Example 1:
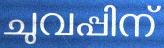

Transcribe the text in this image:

ചുവപ്പിന്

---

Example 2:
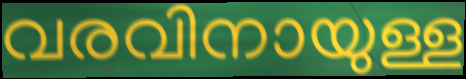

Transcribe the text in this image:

വരവിനായുള്ള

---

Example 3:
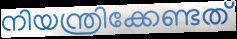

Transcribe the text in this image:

നിയന്ത്രിക്കേണ്ടത്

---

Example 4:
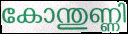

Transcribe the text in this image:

കോന്തുണ്ണി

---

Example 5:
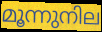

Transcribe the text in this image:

മൂന്നുനില